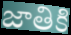
జాతికి